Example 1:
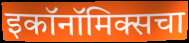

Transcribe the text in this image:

इकॉनॉमिक्सचा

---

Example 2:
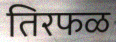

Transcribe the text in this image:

तिरफळ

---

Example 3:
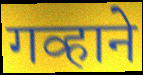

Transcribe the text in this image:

गव्हाने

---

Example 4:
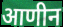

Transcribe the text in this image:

आणीन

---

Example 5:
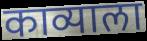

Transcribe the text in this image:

काव्याला